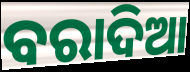
ବରାଦିଆ